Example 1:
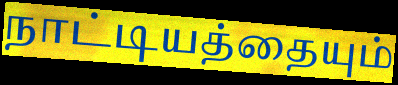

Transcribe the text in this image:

நாட்டியத்தையும்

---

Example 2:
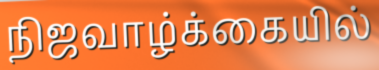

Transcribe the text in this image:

நிஜவாழ்க்கையில்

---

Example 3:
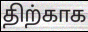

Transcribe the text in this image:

திற்காக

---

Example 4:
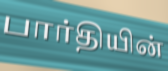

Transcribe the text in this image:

பார்தியின்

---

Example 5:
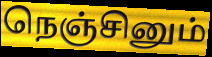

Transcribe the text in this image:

நெஞ்சினும்